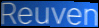
Reuven